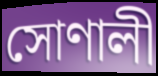
সোণালী